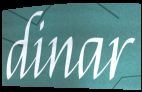
dinar